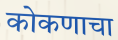
कोकणाचा